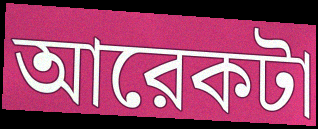
আরেকটা